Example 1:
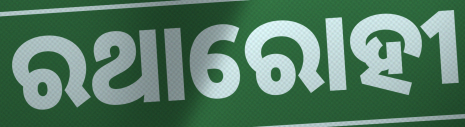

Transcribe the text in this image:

ରଥାରୋହୀ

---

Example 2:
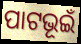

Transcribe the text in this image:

ପାଟଭୂଇଁ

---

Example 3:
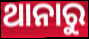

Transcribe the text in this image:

ଥାନାରୁ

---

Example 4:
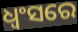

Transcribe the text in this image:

ଧ୍ୱଂସରେ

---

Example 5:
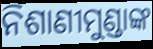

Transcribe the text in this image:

ନିଶାଣୀମୁଣ୍ଡାଙ୍କ